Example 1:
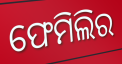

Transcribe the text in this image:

ଫେମିଲିର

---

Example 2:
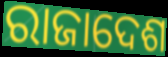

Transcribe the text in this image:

ରାଜାଦେଶ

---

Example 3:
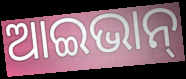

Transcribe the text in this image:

ଆଇଭାନ୍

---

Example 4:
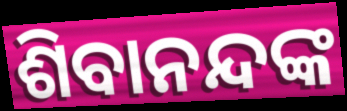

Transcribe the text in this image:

ଶିବାନନ୍ଦଙ୍କ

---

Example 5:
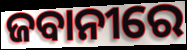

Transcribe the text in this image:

ଜବାନୀରେ